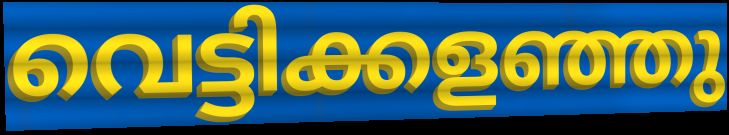
വെട്ടിക്കളഞ്ഞു